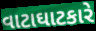
વાટાઘાટકારે